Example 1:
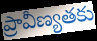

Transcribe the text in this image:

ప్రావీణ్యతకు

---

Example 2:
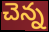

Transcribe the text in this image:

చెన్న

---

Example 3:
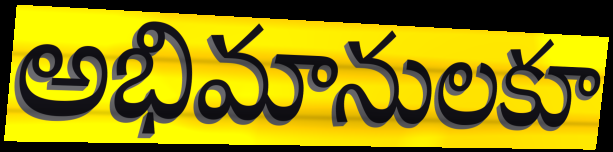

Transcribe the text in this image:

అభిమానులకూ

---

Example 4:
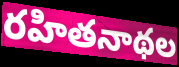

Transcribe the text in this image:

రహితనాథల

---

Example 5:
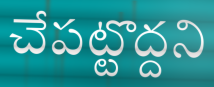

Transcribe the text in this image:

చేపట్టొద్దని